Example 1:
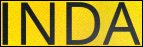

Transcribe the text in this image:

INDA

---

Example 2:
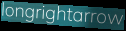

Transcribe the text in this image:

longrightarrow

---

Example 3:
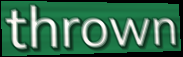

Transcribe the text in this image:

thrown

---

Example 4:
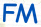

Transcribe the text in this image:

FM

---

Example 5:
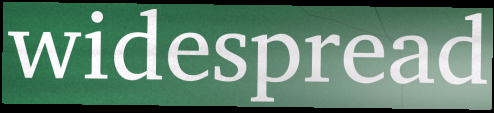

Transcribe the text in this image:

widespread